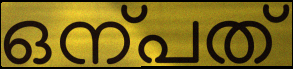
ഒന്പത്